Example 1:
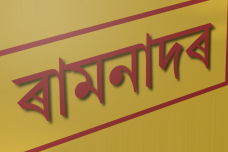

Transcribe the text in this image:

ৰামনাদৰ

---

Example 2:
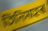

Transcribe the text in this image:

তিনিমাহৰ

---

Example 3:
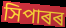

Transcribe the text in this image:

সিপাৰৰ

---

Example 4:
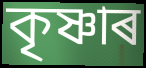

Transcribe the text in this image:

কৃষ্ণাৰ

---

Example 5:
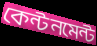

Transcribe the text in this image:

কেন্টনমেন্ট